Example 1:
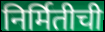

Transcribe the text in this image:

निर्मितीची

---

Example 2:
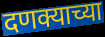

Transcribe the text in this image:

दणक्याच्या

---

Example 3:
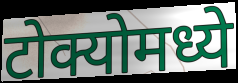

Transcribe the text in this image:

टोक्योमध्ये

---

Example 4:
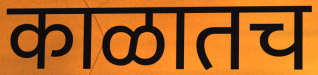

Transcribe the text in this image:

काळातच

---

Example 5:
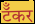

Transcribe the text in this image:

टॅँकर